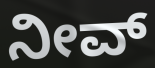
ನೀವ್